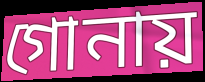
গোনায়